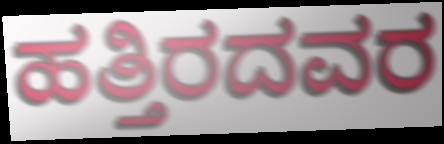
ಹತ್ತಿರದವರ